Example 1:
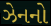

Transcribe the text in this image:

ઝેનનો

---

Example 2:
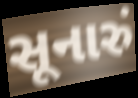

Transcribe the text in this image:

સૂનારું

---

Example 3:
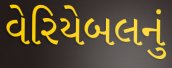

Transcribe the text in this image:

વેરિયેબલનું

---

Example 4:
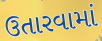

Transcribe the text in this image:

ઉતારવામાં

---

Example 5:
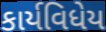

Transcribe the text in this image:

કાર્યવિધેય